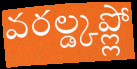
వరల్డ్కప్ల్లో